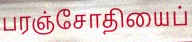
பரஞ்சோதியைப்